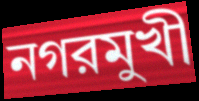
নগরমুখী